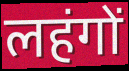
लहंगों